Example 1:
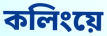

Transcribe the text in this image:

কলিংয়ে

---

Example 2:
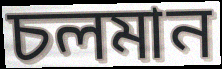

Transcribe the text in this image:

চলমান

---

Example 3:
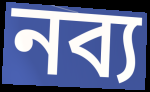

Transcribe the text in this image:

নব্য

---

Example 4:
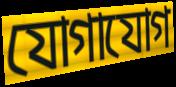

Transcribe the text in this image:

যোগাযোগ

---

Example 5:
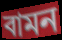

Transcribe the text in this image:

বামন